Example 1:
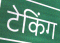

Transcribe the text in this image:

टेकिंग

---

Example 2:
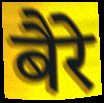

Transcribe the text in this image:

बैरे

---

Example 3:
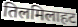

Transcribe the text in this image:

तिलमिलाहट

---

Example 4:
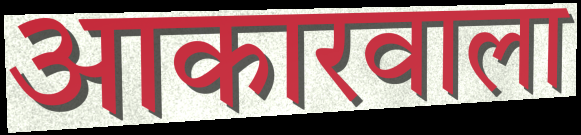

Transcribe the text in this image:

आकारवाला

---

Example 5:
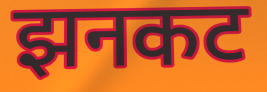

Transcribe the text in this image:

झनकट